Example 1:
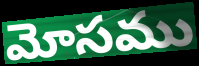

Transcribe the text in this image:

మోసము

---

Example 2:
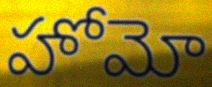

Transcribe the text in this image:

హోమో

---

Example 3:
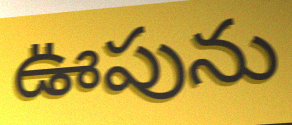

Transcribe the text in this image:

ఊపును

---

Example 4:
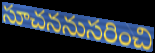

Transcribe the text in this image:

సూచననుసరించి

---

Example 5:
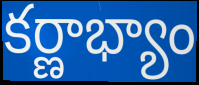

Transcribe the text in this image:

కర్ణాభ్యాం